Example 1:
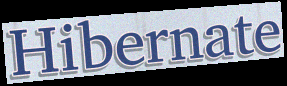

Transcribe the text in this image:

Hibernate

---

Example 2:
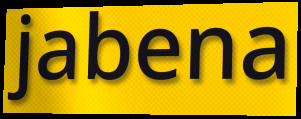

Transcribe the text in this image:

jabena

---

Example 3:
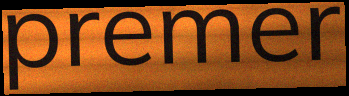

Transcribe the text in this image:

premer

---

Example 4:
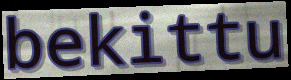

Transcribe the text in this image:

bekittu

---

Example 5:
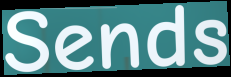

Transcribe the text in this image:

Sends